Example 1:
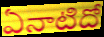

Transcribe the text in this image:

ఏనాటిదో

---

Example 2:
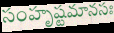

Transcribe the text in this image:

సంహృష్టమానసః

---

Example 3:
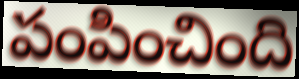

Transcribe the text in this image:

పంపించింది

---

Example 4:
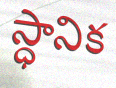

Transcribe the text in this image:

స్ధానిక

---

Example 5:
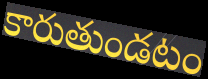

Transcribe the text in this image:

కారుతుండటం